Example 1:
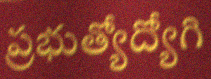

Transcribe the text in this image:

ప్రభుత్యోద్యోగి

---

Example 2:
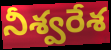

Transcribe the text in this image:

నీశ్వరేశ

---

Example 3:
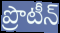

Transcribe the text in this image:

ప్రొటీన్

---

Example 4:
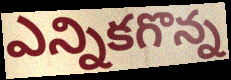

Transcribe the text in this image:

ఎన్నికగొన్న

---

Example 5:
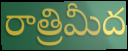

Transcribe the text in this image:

రాత్రిమీద